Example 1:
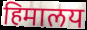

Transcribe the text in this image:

हिमालय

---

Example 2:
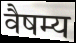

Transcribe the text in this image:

वैषम्य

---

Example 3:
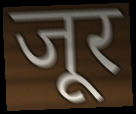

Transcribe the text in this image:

जूर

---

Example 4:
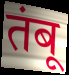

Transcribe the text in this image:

तंबू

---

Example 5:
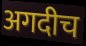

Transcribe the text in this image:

अगदीच